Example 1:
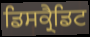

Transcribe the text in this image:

ਡਿਸਕ੍ਰੈਡਿਟ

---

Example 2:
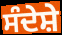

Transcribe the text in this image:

ਸੰਦੇਸ਼ੇ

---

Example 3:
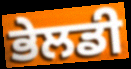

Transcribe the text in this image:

ਭੇਲਡੀ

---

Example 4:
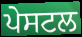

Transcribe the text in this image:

ਪੇਸਟਲ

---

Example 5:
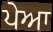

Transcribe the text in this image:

ਪੇਆ